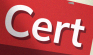
Cert